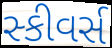
સ્કીવર્સ